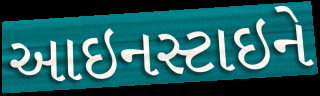
આઇનસ્ટાઇને